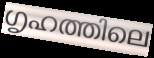
ഗൃഹത്തിലെ